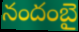
నందంబై